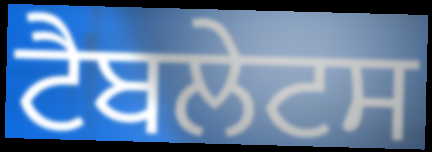
ਟੈਬਲੇਟਸ